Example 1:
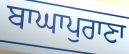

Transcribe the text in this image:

ਬਾਘਾਪੁਰਾਣਾ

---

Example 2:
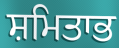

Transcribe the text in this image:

ਸ਼ਮਿਤਾਭ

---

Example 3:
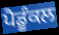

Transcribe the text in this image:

ਪੈਡੂੰਕਲ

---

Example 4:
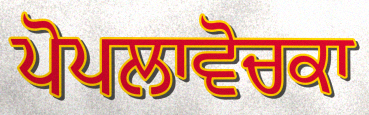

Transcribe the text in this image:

ਪੋਪਲਾਵੋਚਕਾ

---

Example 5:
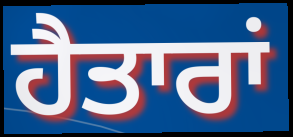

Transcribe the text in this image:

ਹੈਤਾਰਾਂ